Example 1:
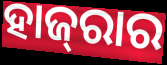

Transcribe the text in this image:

ହାଜ୍‌ରାର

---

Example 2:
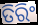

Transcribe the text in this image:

ତିରିଂ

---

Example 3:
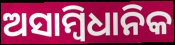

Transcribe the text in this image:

ଅସାମ୍ୱିଧାନିକ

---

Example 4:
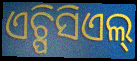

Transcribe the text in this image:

ଏଚ୍ପିସିଏଲ୍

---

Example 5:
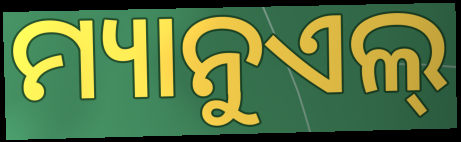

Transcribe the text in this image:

ମ୍ୟାନୁଏଲ୍